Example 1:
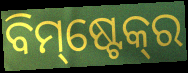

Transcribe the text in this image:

ବିମ୍‌ଷ୍ଟେକ୍‌ର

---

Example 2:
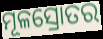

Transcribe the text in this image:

ମୂଳସ୍ରୋତର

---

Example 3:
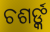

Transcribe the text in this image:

ଚଶର୍ଙ୍କ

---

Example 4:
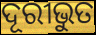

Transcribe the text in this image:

ଦୂରୀଭୁତ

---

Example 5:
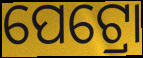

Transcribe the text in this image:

ପେଟ୍ରୋ